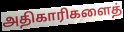
அதிகாரிகளைத்